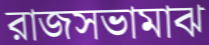
রাজসভামাঝ